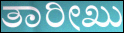
ತಾರೀಖು